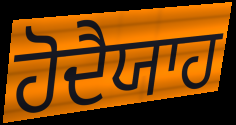
ਹੋਦੈਯਾਹ